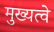
मुख्यत्वे